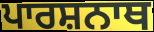
ਪਾਰਸ਼ਨਾਥ